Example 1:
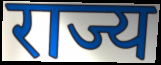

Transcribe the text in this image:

राज्य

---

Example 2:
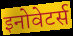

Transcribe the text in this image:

इनोवेटर्स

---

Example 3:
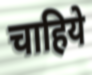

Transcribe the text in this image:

चाहिये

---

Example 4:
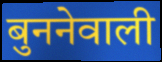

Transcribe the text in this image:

बुननेवाली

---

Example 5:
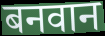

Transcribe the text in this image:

बनवान